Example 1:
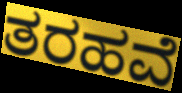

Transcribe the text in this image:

ತರಹವೆ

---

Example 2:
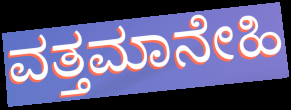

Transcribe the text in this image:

ವತ್ತಮಾನೇಹಿ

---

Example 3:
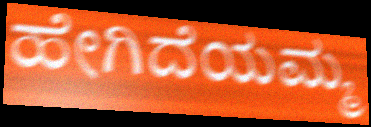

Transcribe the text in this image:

ಹೇಗಿದೆಯಮ್ಮ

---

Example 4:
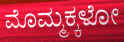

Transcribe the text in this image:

ಮೊಮ್ಮಕ್ಕಳೋ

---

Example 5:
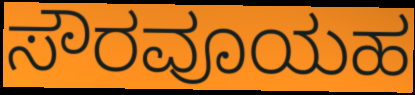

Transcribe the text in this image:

ಸೌರವೂಯಹ